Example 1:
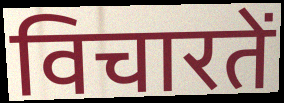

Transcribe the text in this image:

विचारतें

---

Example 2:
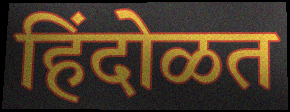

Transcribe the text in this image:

हिंदोळत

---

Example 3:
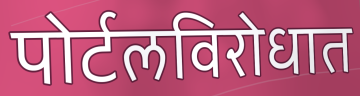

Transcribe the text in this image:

पोर्टलविरोधात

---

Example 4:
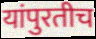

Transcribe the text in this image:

यांपुरतीच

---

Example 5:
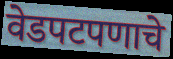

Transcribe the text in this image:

वेडपटपणाचे